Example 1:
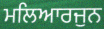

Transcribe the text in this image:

ਮਲਿਆਰਜੁਨ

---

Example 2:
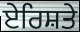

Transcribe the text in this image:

ਏਰਿਸ਼ਤੇ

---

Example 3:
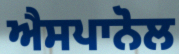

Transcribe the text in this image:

ਐਸਪਾਨੋਲ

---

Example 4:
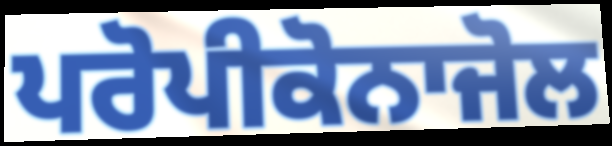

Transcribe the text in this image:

ਪਰੋਪੀਕੋਨਾਜੋਲ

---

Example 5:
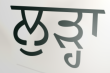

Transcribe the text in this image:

ਲੁੜ੍ਹਾ